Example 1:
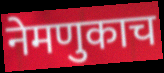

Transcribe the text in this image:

नेमणुकाच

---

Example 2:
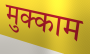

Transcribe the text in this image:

मुक्‍काम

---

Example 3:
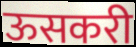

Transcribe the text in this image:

ऊसकरी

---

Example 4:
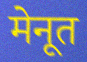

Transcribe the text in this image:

मेनूत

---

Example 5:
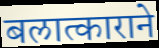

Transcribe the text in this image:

बलात्काराने